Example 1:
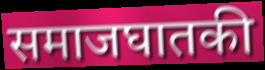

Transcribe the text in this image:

समाजघातकी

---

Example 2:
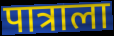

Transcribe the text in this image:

पात्राला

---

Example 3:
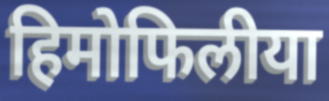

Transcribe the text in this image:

हिमोफिलीया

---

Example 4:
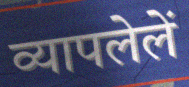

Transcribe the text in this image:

व्यापलेलें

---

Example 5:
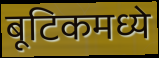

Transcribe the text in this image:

बूटिकमध्ये